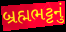
બ્રહ્મભટ્ટનું